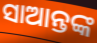
ସାଆନ୍ତଙ୍କ